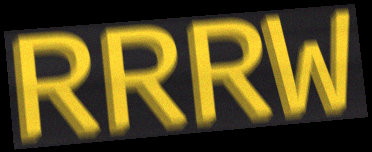
RRRW